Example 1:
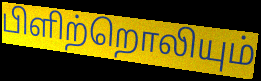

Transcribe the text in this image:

பிளிற்றொலியும்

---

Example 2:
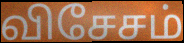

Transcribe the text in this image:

விசேசம்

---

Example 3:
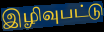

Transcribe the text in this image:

இழிவுபட்டு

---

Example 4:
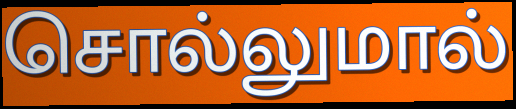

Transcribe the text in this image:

சொல்லுமால்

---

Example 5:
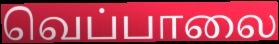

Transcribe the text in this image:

வெப்பாலை